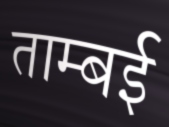
ताम्बई